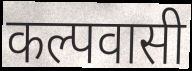
कल्पवासी